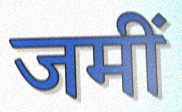
जमीं